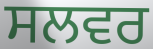
ਸਲਵਰ